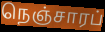
நெஞ்சாரப்